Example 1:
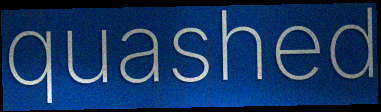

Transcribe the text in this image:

quashed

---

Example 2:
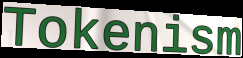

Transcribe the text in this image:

Tokenism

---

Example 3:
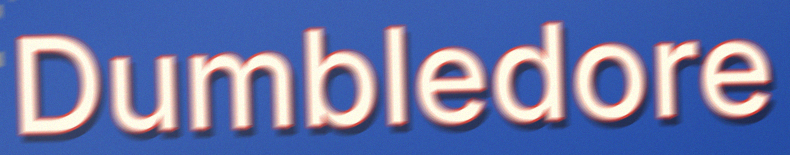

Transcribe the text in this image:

Dumbledore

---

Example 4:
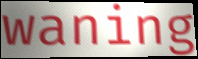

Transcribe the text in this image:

waning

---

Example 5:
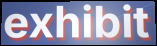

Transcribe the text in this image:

exhibit